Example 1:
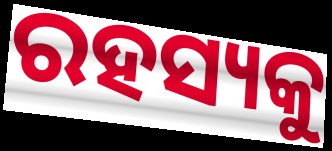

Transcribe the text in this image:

ରହସ୍ୟକୁ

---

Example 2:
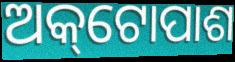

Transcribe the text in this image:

ଅକ୍‌ଟୋପାଶ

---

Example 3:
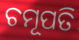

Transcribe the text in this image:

ଚମୂପତି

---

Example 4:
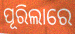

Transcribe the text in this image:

ପୂରିଲାରେ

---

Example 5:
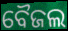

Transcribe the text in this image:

ବୈଜଲ